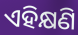
ଏହିକ୍ଷଣି